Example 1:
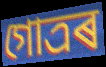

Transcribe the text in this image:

গোত্ৰৰ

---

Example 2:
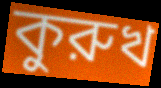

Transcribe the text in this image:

কুৰুখ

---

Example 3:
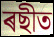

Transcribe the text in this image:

ৰছীত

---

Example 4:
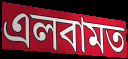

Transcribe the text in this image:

এলবামত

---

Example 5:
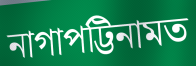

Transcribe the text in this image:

নাগাপট্টিনামত